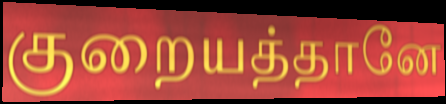
குறையத்தானே